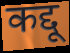
कद्दू